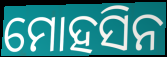
ମୋହସିନ